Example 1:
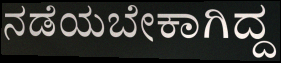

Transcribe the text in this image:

ನಡೆಯಬೇಕಾಗಿದ್ದ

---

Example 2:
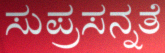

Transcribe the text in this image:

ಸುಪ್ರಸನ್ನತೆ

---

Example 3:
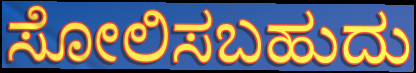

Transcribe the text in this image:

ಸೋಲಿಸಬಹುದು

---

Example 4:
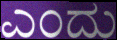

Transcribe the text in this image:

ಎಂದು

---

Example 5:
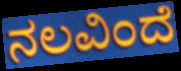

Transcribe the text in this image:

ನಲವಿಂದೆ